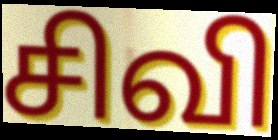
சிவி